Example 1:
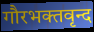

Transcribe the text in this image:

गौरभक्तवृन्द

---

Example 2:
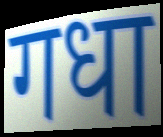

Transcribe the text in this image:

गधा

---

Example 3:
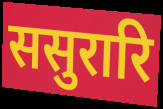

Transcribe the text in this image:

ससुरारि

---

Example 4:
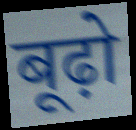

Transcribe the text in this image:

बूढ़ो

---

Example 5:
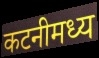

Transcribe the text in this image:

कटनीमध्य